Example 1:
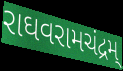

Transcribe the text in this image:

રાઘવરામચંદ્રમ્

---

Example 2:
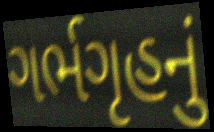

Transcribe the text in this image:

ગર્ભગૃહનું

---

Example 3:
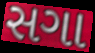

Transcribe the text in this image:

સગા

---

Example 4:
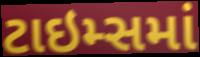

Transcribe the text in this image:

ટાઇમ્સમાં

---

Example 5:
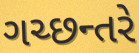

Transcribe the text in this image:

ગચ્છન્તરે